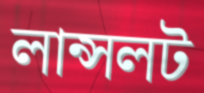
লান্সলট